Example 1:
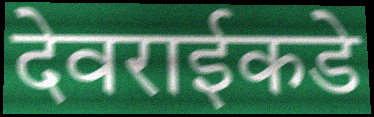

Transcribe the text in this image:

देवराईकडे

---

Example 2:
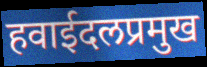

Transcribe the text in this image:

हवाईदलप्रमुख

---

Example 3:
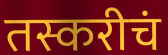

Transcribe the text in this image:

तस्करीचं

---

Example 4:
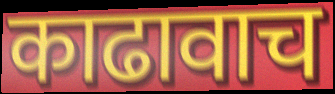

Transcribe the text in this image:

काढावाच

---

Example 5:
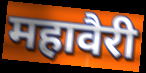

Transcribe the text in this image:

महावैरी